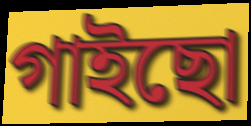
গাইছো